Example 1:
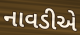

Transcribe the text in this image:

નાવડીએ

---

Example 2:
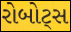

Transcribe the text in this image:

રોબોટ્સ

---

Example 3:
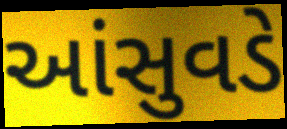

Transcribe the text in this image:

આંસુવડે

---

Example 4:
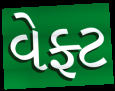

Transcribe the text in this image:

વેફ્ટ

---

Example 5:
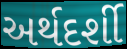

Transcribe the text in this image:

અર્થદર્શી